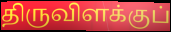
திருவிளக்குப்